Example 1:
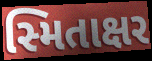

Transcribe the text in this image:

સ્મિતાક્ષર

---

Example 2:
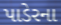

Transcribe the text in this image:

પાડેરના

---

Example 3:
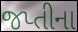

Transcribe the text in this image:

જપ્તીના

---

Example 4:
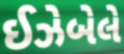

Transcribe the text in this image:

ઈઝેબેલે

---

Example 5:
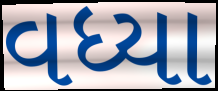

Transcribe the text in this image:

વધ્યા